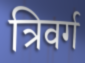
त्रिवर्ग